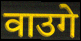
वाउगे